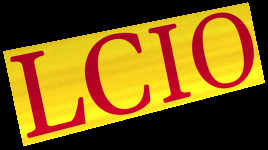
LCIO